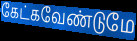
கேட்கவேண்டுமே